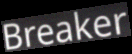
Breaker